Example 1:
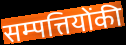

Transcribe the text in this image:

सम्पत्तियोंकी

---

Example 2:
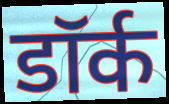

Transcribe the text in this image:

डॉर्क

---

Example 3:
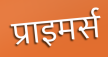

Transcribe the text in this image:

प्राइमर्स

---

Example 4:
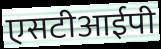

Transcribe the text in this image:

एसटीआईपी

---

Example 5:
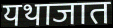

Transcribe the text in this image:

यथाजात